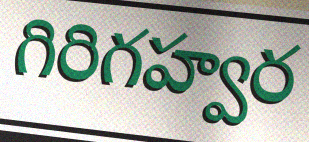
గిరిగహ్వర